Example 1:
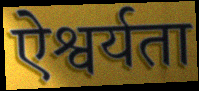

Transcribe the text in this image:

ऐश्वर्यता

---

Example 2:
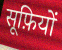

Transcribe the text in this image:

सूफ़ियों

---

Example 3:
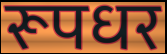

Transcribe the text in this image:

रूपधर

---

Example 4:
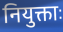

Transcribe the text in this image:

नियुक्ताः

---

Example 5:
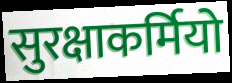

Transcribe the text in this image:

सुरक्षाकर्मियो